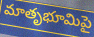
మాతృభూమిపై